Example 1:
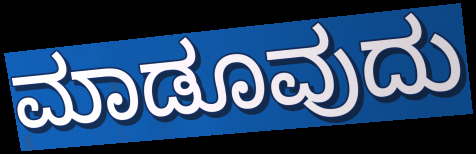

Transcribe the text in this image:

ಮಾಡೂವುದು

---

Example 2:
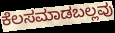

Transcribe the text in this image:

ಕೆಲಸಮಾಡಬಲ್ಲವು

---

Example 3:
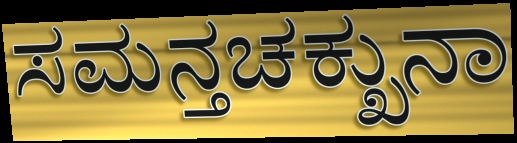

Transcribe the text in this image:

ಸಮನ್ತಚಕ್ಖುನಾ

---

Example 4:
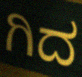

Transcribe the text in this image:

ಗಿದ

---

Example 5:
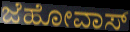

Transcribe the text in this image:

ಜೆಹೋವಾಸ್